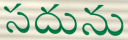
సదును